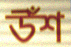
উঁশ